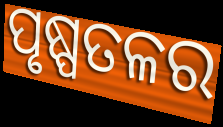
ପୃଷ୍ପତଳର